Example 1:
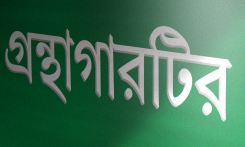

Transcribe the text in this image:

গ্রন্থাগারটির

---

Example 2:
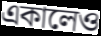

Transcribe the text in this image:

একালেও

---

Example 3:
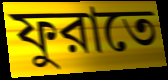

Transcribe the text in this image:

ফুরাতে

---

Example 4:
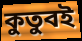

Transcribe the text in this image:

কুতুবই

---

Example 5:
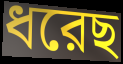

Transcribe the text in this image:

ধরেছ